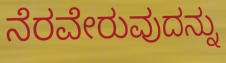
ನೆರವೇರುವುದನ್ನು